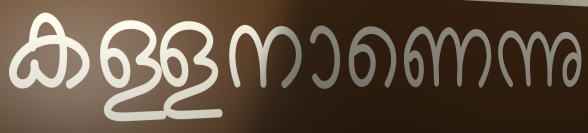
കള്ളനാണെന്നു